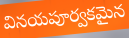
వినయపూర్వకమైన